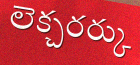
లెక్చరర్కు